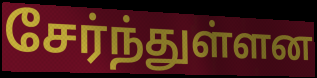
சேர்ந்துள்ளன